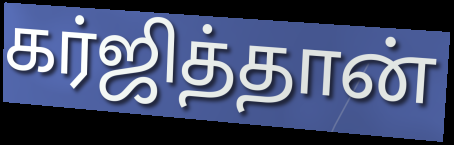
கர்ஜித்தான்